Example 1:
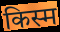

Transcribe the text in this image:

किस्‍म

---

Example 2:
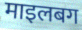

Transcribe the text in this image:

माइलबग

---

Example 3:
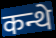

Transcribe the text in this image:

कन्थे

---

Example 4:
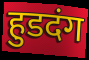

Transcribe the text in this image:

हुडदंग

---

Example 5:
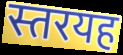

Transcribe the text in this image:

स्तरयह